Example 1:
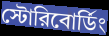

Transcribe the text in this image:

স্টোরিবোর্ডিং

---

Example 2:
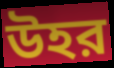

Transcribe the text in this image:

উহর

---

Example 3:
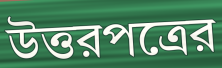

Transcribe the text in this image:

উত্তরপত্রের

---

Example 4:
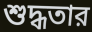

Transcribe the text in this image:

শুদ্ধতার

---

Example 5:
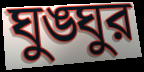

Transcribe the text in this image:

ঘুঙ্ঘুর